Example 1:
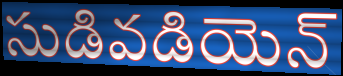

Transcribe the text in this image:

సుడివడియెన్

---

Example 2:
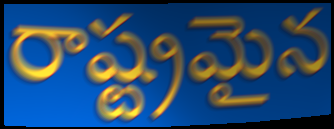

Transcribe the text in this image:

రాష్ట్రమైన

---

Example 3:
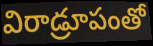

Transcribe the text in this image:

విరాడ్రూపంతో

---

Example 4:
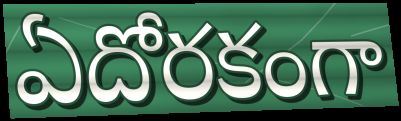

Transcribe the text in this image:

ఏదోరకంగా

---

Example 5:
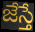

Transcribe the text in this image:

జేస్తే